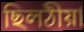
ছিলঠীয়া